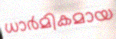
ധാർമികമായ